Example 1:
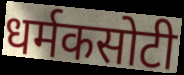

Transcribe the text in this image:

धर्मकसोटी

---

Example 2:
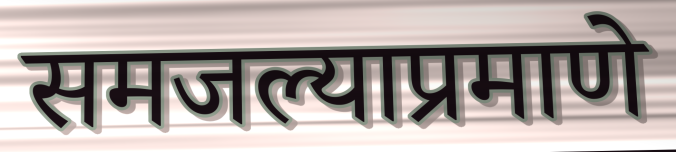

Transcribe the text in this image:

समजल्याप्रमाणे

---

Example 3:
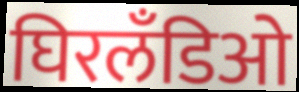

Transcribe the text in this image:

घिरलँडिओ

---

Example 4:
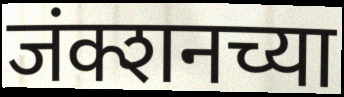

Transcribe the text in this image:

जंक्शनच्या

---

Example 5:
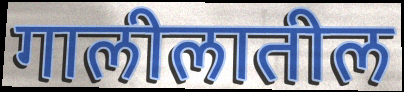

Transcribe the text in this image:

गालीलातील